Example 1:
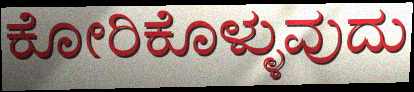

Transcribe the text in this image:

ಕೋರಿಕೊಳ್ಳುವುದು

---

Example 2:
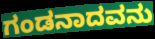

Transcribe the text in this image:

ಗಂಡನಾದವನು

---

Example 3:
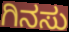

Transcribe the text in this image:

ಗಿನಸು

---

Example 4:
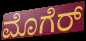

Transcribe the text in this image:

ಮೊಗೆರ್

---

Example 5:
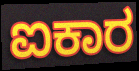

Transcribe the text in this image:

ಐಕಾರ